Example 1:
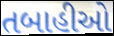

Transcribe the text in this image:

તબાહીઓ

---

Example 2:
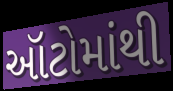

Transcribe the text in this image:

ઑટોમાંથી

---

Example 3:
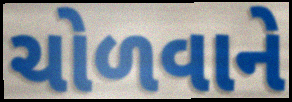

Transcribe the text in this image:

ચોળવાને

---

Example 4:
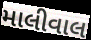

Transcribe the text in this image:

માલીવાલ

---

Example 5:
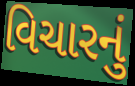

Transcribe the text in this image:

વિચારનું